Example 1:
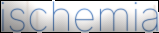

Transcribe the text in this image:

ischemia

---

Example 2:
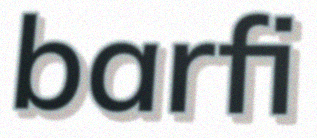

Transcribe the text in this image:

barfi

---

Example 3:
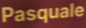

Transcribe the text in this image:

Pasquale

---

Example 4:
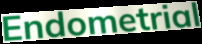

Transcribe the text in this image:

Endometrial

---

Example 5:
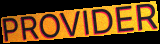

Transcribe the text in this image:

PROVIDER